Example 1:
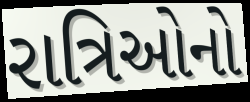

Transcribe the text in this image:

રાત્રિઓનો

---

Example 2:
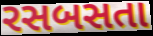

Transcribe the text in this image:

રસબસતા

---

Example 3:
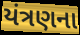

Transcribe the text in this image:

યંત્રણના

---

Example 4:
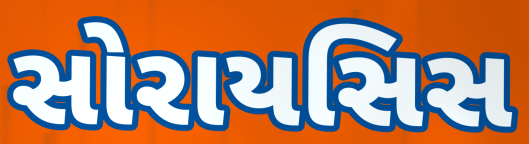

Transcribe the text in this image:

સોરાયસિસ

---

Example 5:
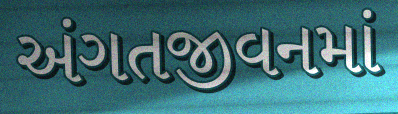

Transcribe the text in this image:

અંગતજીવનમાં